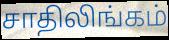
சாதிலிங்கம்